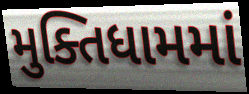
મુક્તિધામમાં